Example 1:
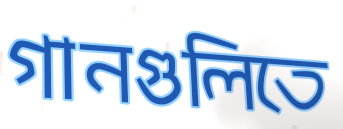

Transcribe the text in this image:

গানগুলিতে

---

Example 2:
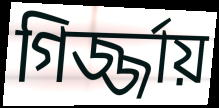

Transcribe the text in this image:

গির্জ্জায়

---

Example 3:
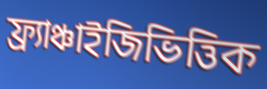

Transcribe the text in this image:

ফ্র্যাঞ্চাইজিভিত্তিক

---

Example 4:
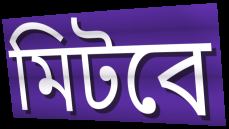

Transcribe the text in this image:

মিটবে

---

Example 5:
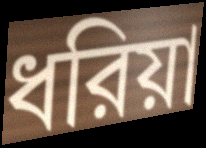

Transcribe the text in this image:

ধরিয়া